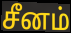
சீனம்